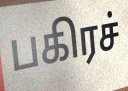
பகிரச்